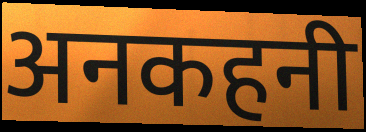
अनकहनी